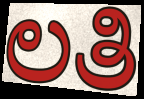
ಲತಿ